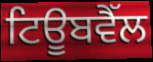
ਟਿਊਬਵੈੱਲ